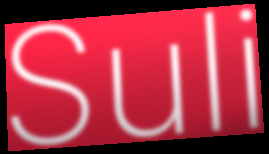
Suli